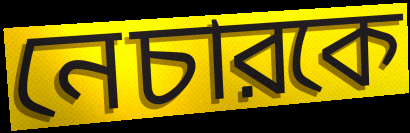
নেচারকে